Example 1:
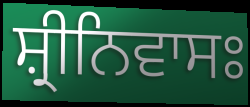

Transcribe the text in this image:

ਸ਼੍ਰੀਨਿਵਾਸਃ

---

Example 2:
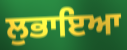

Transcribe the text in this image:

ਲੁਭਾਇਆ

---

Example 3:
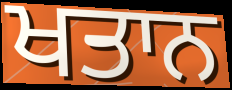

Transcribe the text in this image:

ਖਤਾਨ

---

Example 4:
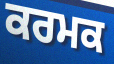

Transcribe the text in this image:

ਕਰਮਕ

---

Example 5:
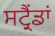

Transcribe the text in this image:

ਸਟ੍ਰੈਂਡਾਂ